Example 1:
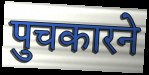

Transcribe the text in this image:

पुचकारने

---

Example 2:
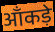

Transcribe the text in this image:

आँकड़े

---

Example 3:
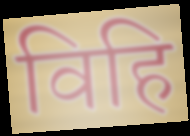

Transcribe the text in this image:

विहि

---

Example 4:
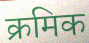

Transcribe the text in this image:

क्रमिक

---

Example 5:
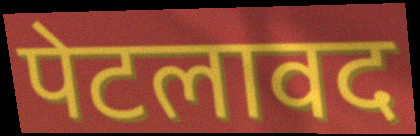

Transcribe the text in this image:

पेटलावद